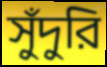
সুঁদুরি